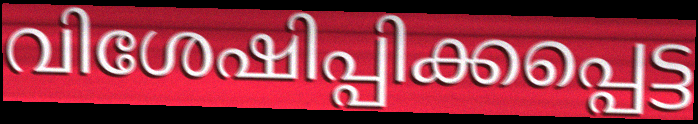
വിശേഷിപ്പിക്കപ്പെട്ട